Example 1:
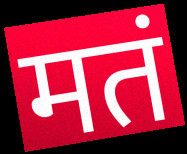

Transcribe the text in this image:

मतं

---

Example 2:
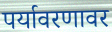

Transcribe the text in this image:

पर्यावरणावर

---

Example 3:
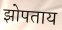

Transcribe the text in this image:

झोपताय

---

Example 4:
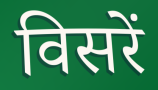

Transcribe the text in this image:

विसरें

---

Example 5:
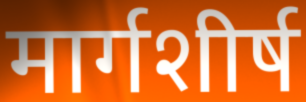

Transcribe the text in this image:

मार्गशीर्ष